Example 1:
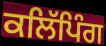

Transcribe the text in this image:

ਕਲਿੱਪਿੰਗ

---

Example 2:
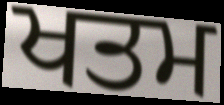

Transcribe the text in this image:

ਖਤਮ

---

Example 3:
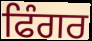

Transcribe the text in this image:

ਫਿੰਗਰ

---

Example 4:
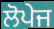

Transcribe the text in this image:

ਲੋਪੇਜ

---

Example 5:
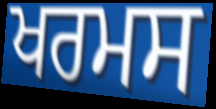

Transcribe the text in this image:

ਖਰਮਸ